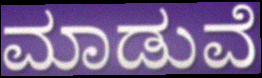
ಮಾಡುವೆ